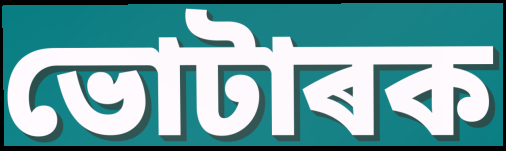
ভোটাৰক